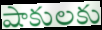
షాకులకు